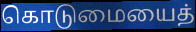
கொடுமையைத்